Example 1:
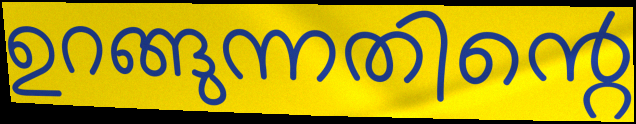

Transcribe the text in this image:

ഉറങ്ങുന്നതിന്റെ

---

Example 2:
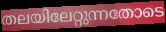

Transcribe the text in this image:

തലയിലേറ്റുന്നതോടെ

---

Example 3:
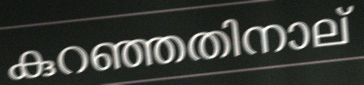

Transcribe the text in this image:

കുറഞ്ഞതിനാല്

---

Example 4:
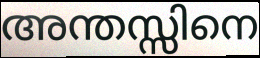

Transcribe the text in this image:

അന്തസ്സിനെ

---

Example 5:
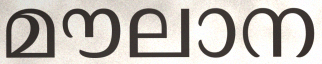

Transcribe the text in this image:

മൗലാന